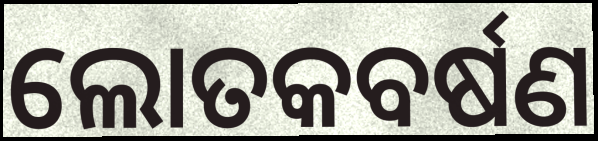
ଲୋତକବର୍ଷଣ